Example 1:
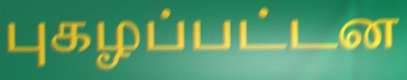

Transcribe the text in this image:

புகழப்பட்டன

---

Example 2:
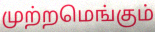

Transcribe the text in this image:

முற்றமெங்கும்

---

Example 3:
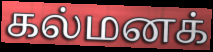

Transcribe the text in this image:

கல்மனக்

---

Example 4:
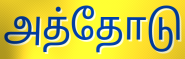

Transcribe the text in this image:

அத்தோடு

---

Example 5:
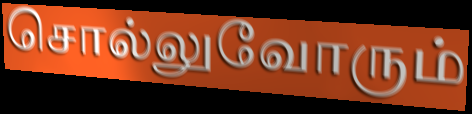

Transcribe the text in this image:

சொல்லுவோரும்